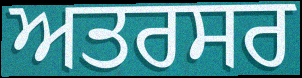
ਅਤਰਸਰ